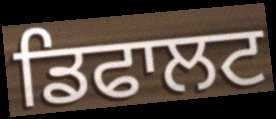
ਡਿਫਾਲਟ